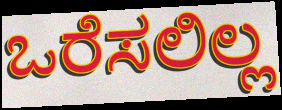
ಒರೆಸಲಿಲ್ಲ